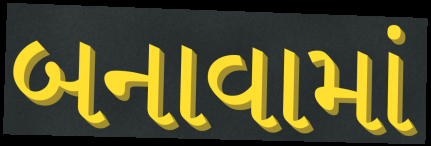
બનાવામાં